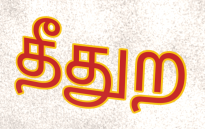
தீதுற